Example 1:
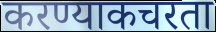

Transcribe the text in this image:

करण्याकचरता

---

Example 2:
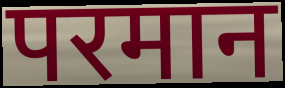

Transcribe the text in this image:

परमान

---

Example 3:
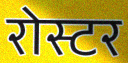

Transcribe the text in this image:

रोस्टर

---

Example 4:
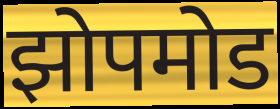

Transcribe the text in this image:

झोपमोड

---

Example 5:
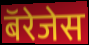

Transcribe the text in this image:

बॅरेजेस